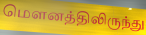
மௌனத்திலிருந்து